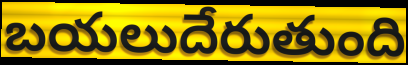
బయలుదేరుతుంది